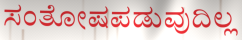
ಸಂತೋಷಪಡುವುದಿಲ್ಲ